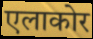
एलाकोर